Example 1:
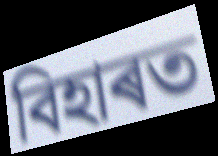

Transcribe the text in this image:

বিহাৰত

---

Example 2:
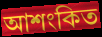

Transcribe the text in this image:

আশংকিত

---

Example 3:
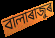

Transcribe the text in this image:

বালাৰাজুৰ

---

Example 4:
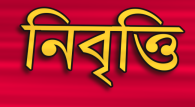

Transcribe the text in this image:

নিবৃত্তি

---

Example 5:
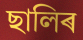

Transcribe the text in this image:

ছালিৰ